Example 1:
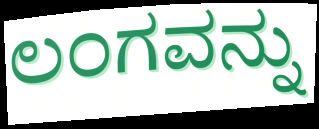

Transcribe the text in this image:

ಲಂಗವನ್ನು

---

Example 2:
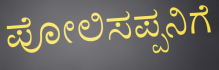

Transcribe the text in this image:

ಪೋಲಿಸಪ್ಪನಿಗೆ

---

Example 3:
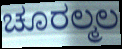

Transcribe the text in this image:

ಚೂರಲ್ಮಲ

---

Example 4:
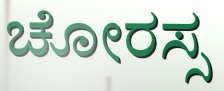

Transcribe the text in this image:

ಚೋರಸ್ಸ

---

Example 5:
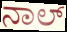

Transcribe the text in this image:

ನಾಲ್